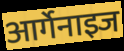
आर्गेनाइज